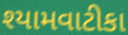
શ્યામવાટીકા